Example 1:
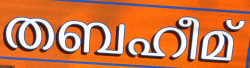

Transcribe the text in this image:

തബഹീമ്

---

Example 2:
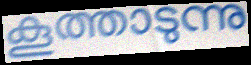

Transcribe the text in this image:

കൂത്താടുന്നു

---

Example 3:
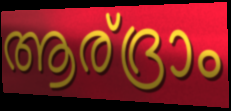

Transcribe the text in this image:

ആര്ദ്രാം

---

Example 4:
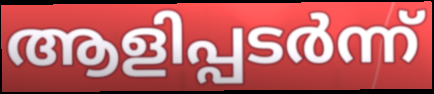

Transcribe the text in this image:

ആളിപ്പടർന്ന്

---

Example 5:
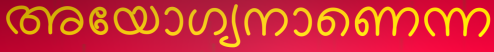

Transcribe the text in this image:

അയോഗ്യനാണെന്ന